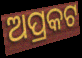
ଅପ୍ରକଟ